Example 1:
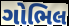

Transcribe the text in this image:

ગોભિલ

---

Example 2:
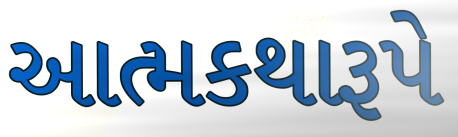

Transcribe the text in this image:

આત્મકથારૂપે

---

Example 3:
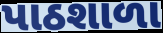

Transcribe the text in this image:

પાઠશાળા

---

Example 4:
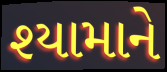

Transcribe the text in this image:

શ્યામાને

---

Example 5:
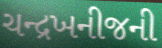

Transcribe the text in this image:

ચન્દ્રખનીજની